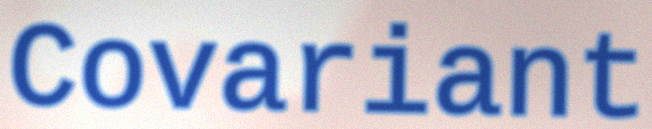
Covariant